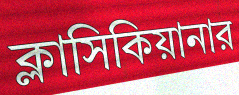
ক্লাসিকিয়ানার